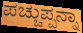
ಪಚ್ಚುಪ್ಪನ್ನಾ